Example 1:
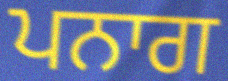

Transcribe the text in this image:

ਪਨਾਗ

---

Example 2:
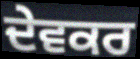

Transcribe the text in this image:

ਦੇਵਕਰ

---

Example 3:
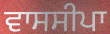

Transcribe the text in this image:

ਵਾਸਸੀਪਾ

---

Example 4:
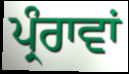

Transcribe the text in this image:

ਪ੍ਰੰਰਾਵਾਂ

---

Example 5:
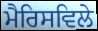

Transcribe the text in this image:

ਮੈਰਿਸਵਿਲੇ